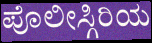
ಪೊಲೀಸ್ಗಿರಿಯ